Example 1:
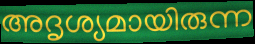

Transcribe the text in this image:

അദൃശ്യമായിരുന്ന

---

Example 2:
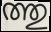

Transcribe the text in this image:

ത്തു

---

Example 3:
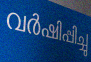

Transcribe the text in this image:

വർഷിപ്പിച്ചു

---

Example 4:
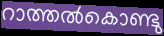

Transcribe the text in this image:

റാത്തൽകൊണ്ടു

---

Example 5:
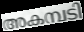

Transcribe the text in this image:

അകമ്പടി